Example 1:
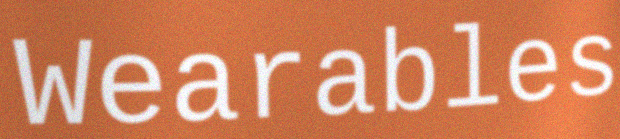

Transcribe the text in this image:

Wearables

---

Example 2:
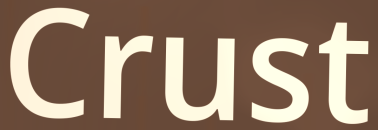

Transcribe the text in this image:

Crust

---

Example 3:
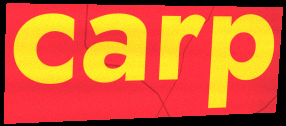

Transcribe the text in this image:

carp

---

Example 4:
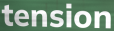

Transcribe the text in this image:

tension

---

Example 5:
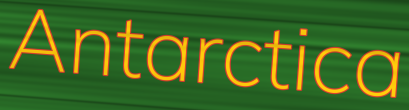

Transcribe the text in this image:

Antarctica